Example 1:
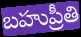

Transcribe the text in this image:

బహుప్రీతి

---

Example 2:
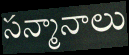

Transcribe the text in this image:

సన్మానాలు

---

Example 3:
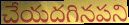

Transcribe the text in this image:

చేయదగినపని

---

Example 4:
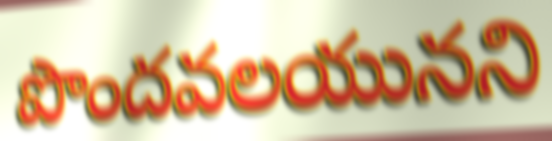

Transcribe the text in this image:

పొందవలయునని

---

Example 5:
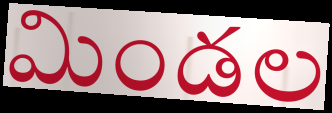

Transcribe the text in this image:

మిండల